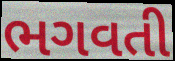
ભગવતી